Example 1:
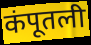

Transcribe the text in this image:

कंपूतली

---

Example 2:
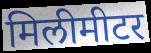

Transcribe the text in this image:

मिलीमीटर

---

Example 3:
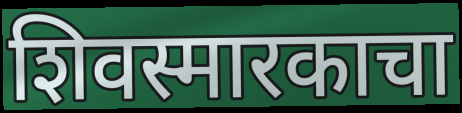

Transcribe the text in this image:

शिवस्मारकाचा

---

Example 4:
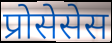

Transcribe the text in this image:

प्रोसेसेस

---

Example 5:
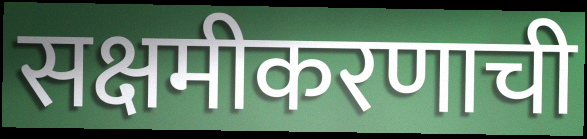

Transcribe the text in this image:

सक्षमीकरणाची